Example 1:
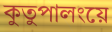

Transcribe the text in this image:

কুতুপালংয়ে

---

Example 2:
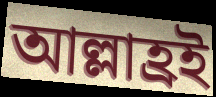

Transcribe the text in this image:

আল্লাহ্রই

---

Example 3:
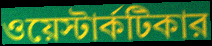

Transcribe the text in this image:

ওয়েস্টার্কটিকার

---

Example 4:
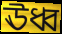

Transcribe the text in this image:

ঊধ্ব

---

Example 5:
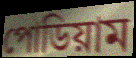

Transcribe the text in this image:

পোডিয়াম